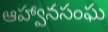
ఆహ్వానసంఘ